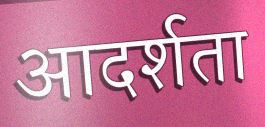
आदर्शता